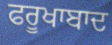
ਫਰੂਖਾਬਾਦ